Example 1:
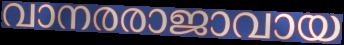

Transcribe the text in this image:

വാനരരാജാവായ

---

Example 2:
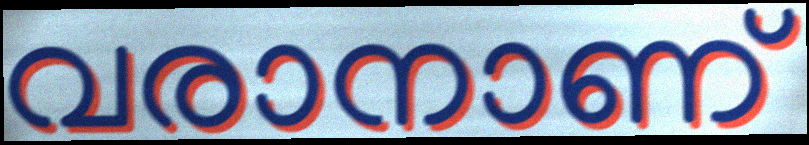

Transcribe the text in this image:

വരാനാണ്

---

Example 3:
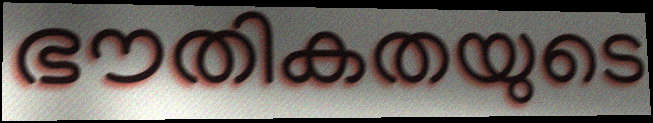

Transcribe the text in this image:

ഭൗതികതയുടെ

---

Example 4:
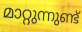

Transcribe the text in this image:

മാറ്റുന്നുണ്ട്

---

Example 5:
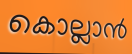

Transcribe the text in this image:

കൊല്ലാൻ